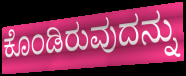
ಕೊಂಡಿರುವುದನ್ನು